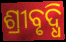
ଶ୍ରୀବୃଦ୍ଧି